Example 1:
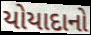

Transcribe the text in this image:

યોયાદાનો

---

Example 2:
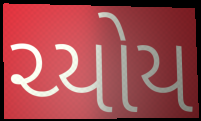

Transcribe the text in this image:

ચ્યોય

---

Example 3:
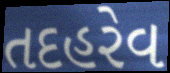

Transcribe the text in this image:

તદહરેવ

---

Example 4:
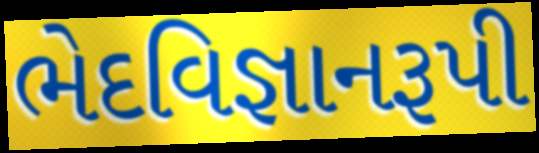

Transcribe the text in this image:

ભેદવિજ્ઞાનરૂપી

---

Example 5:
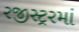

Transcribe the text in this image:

રજીસ્ટ્રરમાં